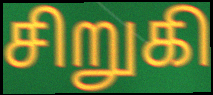
சிறுகி